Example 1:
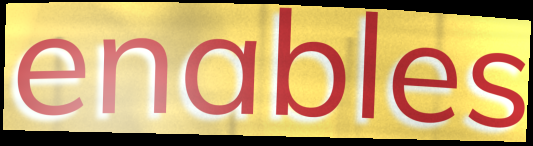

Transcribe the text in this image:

enables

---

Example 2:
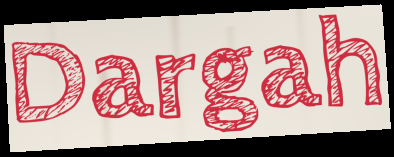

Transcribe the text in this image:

Dargah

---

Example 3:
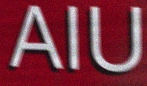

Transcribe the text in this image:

AIU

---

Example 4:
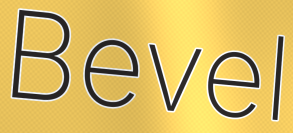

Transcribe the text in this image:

Bevel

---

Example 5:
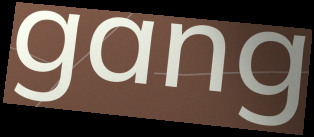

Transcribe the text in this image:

gang